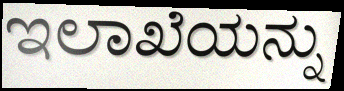
ಇಲಾಖೆಯನ್ನು